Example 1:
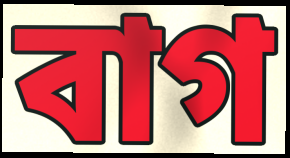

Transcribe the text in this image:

বাগ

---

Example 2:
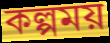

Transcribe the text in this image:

কল্পময়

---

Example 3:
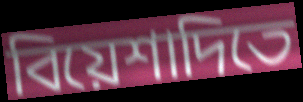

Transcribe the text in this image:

বিয়েশাদিতে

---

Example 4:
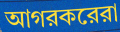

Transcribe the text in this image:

আগরকরেরা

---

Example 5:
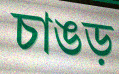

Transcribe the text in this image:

চাঙড়